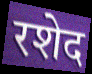
रशेद